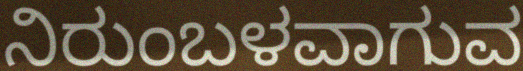
ನಿರುಂಬಳವಾಗುವ